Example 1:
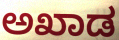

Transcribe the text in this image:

ಅಖಾಡ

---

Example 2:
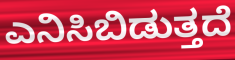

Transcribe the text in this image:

ಎನಿಸಿಬಿಡುತ್ತದೆ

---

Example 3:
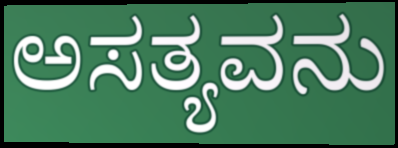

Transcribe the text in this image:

ಅಸತ್ಯವನು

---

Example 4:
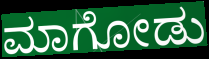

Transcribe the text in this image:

ಮಾಗೋಡು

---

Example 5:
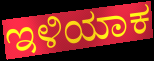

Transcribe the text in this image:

ಇಳಿಯಾಕ